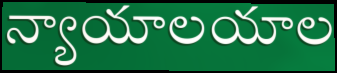
న్యాయాలయాల